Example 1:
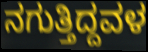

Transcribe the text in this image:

ನಗುತ್ತಿದ್ದವಳ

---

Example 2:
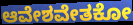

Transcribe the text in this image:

ಆವೇಶವೇತಕೋ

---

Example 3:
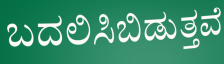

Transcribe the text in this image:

ಬದಲಿಸಿಬಿಡುತ್ತವೆ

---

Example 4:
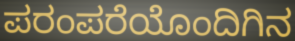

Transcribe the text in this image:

ಪರಂಪರೆಯೊಂದಿಗಿನ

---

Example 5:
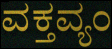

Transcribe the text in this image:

ವಕ್ತವ್ಯಂ